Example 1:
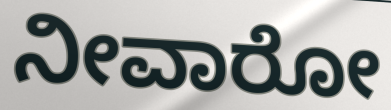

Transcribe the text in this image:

ನೀವಾರೋ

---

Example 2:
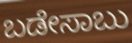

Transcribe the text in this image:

ಬಡೇಸಾಬು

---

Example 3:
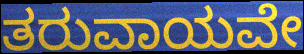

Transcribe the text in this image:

ತರುವಾಯವೇ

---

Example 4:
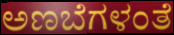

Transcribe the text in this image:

ಅಣಬೆಗಳಂತೆ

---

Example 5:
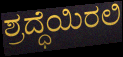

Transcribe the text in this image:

ಶ್ರದ್ಧೆಯಿರಲಿ